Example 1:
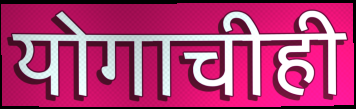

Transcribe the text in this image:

योगाचीही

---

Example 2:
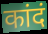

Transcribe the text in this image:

कांदं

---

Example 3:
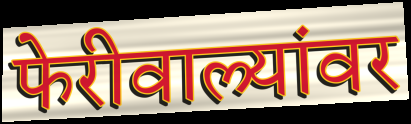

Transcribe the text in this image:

फेरीवाल्यांवर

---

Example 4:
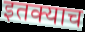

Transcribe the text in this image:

इतक्याच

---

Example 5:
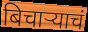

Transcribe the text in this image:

बिचाऱ्याचं